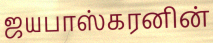
ஜயபாஸ்கரனின்